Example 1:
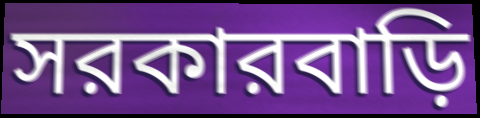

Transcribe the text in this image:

সরকারবাড়ি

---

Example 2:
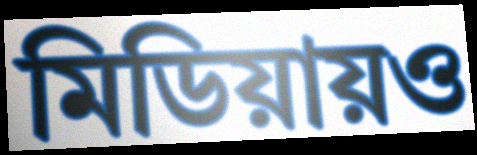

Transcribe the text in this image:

মিডিয়ায়ও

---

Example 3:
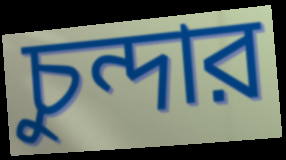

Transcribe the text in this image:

চুন্দার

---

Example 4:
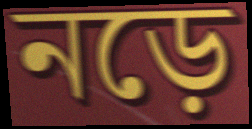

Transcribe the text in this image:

নড়ে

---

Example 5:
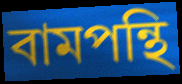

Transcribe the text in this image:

বামপন্থি